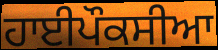
ਹਾਈਪੌਕਸੀਆ